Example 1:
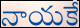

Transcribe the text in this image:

నాయకే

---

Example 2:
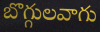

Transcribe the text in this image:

బొగ్గులవాగు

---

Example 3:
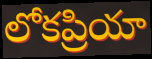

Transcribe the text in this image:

లోకప్రియా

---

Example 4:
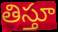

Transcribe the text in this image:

తిస్తూ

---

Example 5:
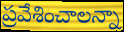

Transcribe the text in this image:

ప్రవేశించాలన్నా